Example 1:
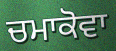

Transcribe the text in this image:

ਚਮਾਕੋਵਾ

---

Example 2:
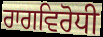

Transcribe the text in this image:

ਰਾਗਵਿਰੋਧੀ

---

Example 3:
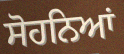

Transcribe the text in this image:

ਸੋਹਨਿਆਂ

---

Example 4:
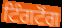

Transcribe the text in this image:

ਟਿੰਗਟੋਂਗ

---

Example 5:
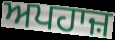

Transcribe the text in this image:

ਅਪਹਾਜ਼